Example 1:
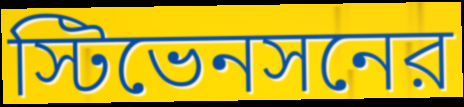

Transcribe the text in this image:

স্টিভেনসনের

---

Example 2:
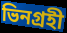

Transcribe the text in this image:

ভিনগ্রহী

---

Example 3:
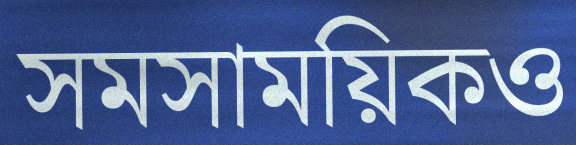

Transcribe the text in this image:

সমসাময়িকও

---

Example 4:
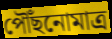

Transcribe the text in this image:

পৌঁছনোমাত্র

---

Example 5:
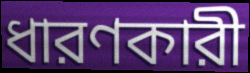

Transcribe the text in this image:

ধারণকারী